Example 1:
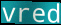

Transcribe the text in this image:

vred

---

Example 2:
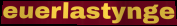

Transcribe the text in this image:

euerlastynge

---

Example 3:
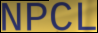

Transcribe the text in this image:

NPCL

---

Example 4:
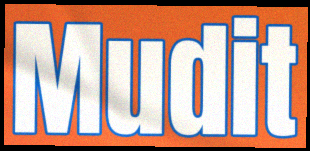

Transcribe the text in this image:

Mudit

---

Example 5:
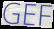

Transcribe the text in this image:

GEF